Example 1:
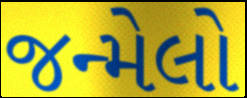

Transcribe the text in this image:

જન્મેલો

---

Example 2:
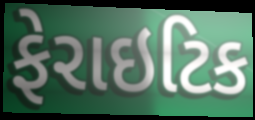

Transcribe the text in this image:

ફેરાઇટિક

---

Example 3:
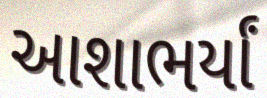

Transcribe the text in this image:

આશાભર્યાં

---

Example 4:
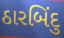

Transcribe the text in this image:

ઠારબિંદુ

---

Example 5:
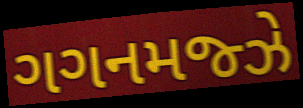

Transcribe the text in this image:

ગગનમજ્ઝે